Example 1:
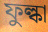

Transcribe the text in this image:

ফুল্কা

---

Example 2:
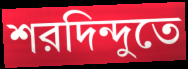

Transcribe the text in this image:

শরদিন্দুতে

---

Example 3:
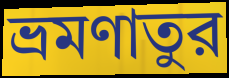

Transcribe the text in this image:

ভ্রমণাতুর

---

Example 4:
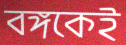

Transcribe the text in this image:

বঙ্গকেই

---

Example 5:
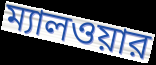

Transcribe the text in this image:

ম্যালওয়ার